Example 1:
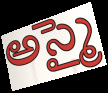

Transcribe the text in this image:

అస్మై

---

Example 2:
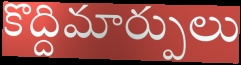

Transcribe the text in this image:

కొద్దిమార్పులు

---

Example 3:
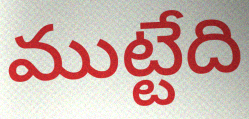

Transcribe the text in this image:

ముట్టేది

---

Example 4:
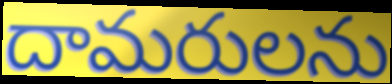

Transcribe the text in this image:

దామరులను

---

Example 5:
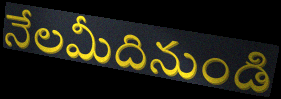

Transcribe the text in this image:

నేలమీదినుండి